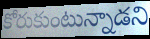
కోరుకుంటున్నాడని